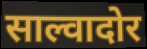
साल्वादोर